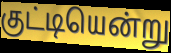
குட்டியென்று